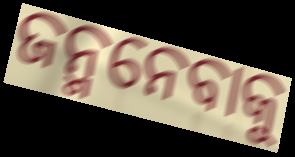
ଜନ୍ମନେବାକୁ